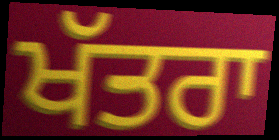
ਖੱਤਰਾ